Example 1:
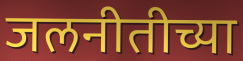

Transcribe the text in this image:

जलनीतीच्या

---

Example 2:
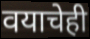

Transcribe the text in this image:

वयाचेही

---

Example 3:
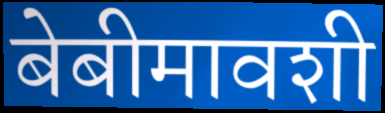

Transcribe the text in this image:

बेबीमावशी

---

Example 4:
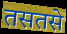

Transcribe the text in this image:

तसतसे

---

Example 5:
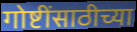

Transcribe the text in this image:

गोष्टींसाठीच्या